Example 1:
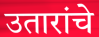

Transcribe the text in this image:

उतारांचे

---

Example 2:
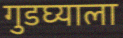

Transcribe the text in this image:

गुडघ्याला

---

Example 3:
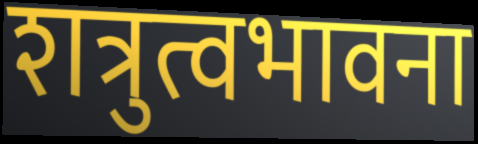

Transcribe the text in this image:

शत्रुत्वभावना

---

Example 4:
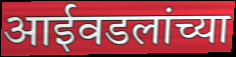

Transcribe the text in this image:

आईवडलांच्या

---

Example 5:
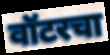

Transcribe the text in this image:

वॉटरचा